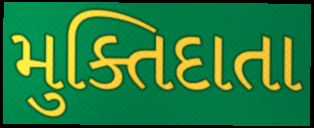
મુક્તિદાતા